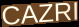
CAZRI